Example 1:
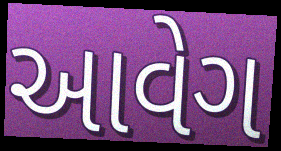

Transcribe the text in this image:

આવેગ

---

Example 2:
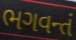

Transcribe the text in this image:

ભગવન્તં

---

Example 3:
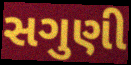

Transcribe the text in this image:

સગુણી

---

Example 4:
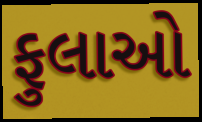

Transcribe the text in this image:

ફુલાઓ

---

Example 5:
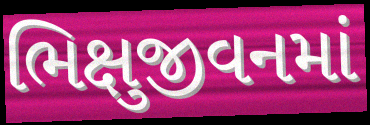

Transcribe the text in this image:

ભિક્ષુજીવનમાં